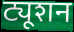
ट्यूशन